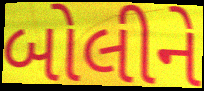
બોલીને